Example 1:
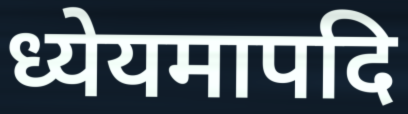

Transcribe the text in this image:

ध्येयमापदि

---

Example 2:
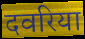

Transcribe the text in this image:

दवरिया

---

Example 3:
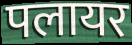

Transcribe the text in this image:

पलायर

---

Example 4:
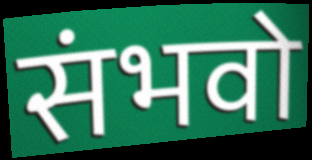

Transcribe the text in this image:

संभवो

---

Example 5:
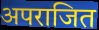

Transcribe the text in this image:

अपराजित